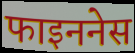
फाइननेस